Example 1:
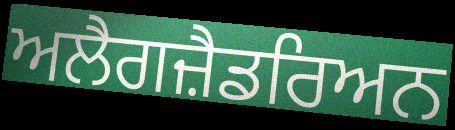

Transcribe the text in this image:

ਅਲੈਗਜ਼ੈਡਰਿਅਨ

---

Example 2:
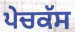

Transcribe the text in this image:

ਪੇਚਕੱਸ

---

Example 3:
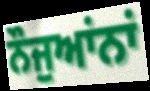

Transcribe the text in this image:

ਨੌਜੁਆਂਨਾਂ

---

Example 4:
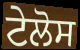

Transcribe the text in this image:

ਟੇਲੋਸ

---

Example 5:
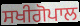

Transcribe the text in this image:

ਸਖੀਗੋਪਾਲ